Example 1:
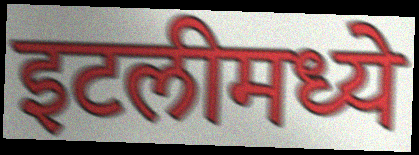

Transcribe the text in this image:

इटलीमध्ये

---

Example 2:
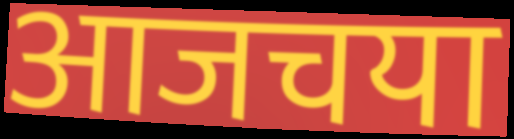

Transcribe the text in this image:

आजचया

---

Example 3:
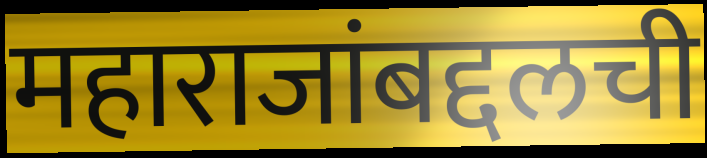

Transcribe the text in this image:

महाराजांबद्दलची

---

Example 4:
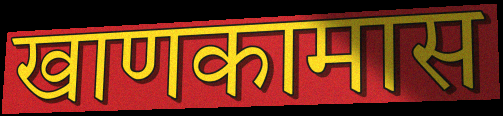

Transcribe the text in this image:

खाणकामास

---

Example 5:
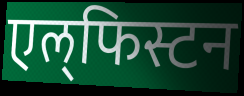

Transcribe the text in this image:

एल्फिस्टन